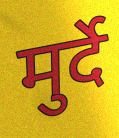
मुर्दे